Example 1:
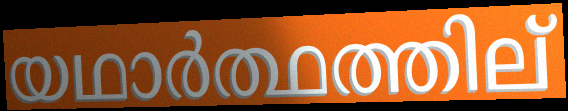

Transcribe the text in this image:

യഥാർത്ഥത്തില്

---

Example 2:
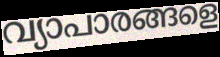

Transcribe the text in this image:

വ്യാപാരങ്ങളെ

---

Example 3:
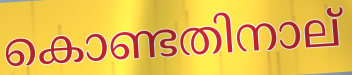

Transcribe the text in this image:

കൊണ്ടതിനാല്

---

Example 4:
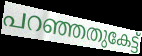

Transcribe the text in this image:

പറഞ്ഞതുകേട്ട്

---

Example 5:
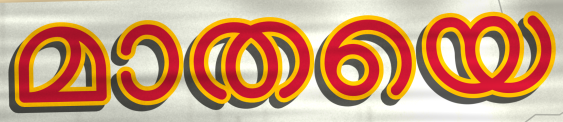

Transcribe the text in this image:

മാതയെ